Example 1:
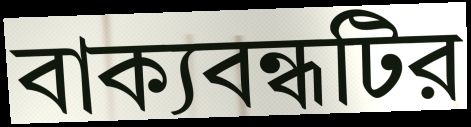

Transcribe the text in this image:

বাক্যবন্ধটির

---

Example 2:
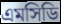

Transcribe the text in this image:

এমসিডি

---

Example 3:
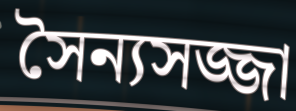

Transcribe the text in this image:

সৈন্যসজ্জা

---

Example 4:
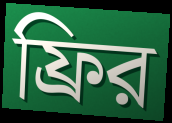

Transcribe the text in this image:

ফ্রির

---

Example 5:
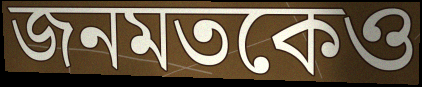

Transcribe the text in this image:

জনমতকেও